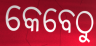
କେବେଠୁ